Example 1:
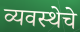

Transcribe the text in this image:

व्यवस्थेचे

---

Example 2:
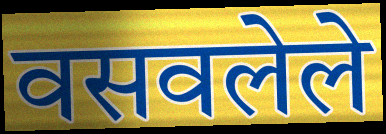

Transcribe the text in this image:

वसवलेले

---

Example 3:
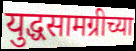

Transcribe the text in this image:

युद्धसामग्रीच्या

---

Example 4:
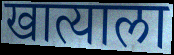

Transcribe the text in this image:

खात्याला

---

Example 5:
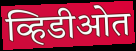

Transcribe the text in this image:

व्हिडीओत